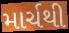
માર્ચથી